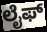
ಲೈಫ್